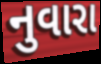
નુવારા